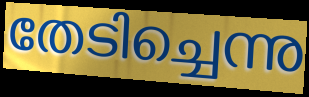
തേടിച്ചെന്നു